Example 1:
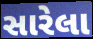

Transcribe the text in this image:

સારેલા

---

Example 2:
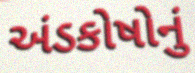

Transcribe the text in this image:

અંડકોષોનું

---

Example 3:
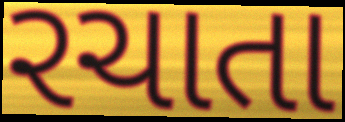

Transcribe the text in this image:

રચાતા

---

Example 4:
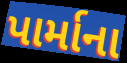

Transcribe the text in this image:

પાર્માના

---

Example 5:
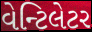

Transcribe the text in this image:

વેન્‍ટિલેટર